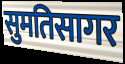
सुमतिसागर